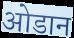
ओडान